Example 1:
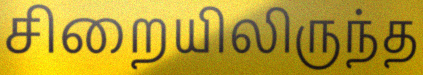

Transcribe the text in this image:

சிறையிலிருந்த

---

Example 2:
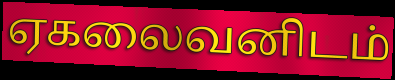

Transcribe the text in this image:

ஏகலைவனிடம்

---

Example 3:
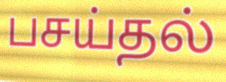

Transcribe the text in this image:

பசய்தல்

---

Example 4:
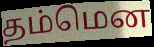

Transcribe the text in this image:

தம்மென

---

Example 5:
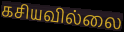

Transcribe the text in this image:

கசியவில்லை